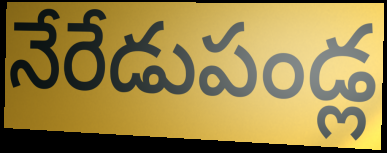
నేరేడుపండ్ల